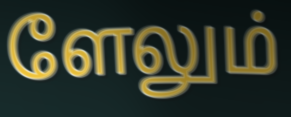
ளேலும்